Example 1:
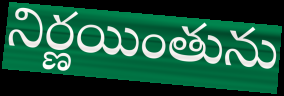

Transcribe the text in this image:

నిర్ణయింతును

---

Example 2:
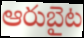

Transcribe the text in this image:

ఆరుబైట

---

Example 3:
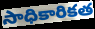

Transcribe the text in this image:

సాధికారికత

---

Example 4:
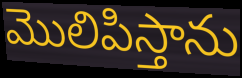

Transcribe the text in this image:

మొలిపిస్తాను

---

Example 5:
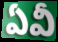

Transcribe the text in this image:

ఏవీ